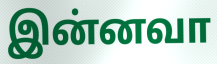
இன்னவா